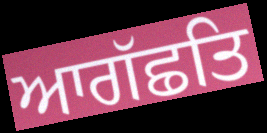
ਆਗੱਛਤਿ